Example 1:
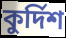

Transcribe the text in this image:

কুর্দিশ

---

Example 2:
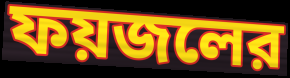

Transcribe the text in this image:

ফয়জলের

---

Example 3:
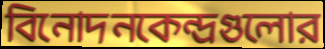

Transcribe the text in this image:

বিনোদনকেন্দ্রগুলোর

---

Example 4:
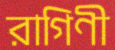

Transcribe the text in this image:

রাগিণী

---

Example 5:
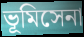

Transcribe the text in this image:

ভূমিসেনা